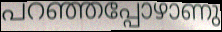
പറഞ്ഞപ്പോഴാണു